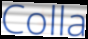
Colla